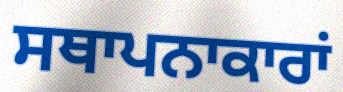
ਸਥਾਪਨਾਕਾਰਾਂ